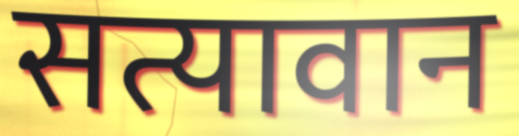
सत्यावान